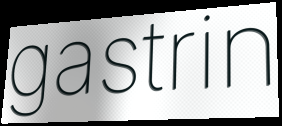
gastrin